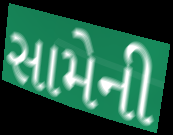
સામેની